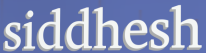
siddhesh